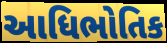
આધિભોતિક